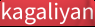
kagaliyan